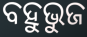
ବହୁଭୁଜ